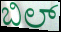
ಬಿಲ್